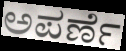
ಅಪರ್ಣೆ